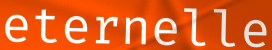
eternelle